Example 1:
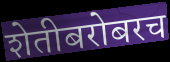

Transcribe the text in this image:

शेतीबरोबरच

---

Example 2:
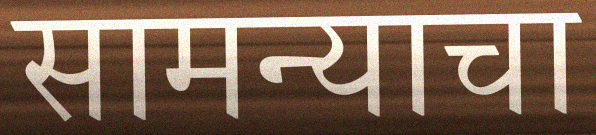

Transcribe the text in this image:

सामन्याचा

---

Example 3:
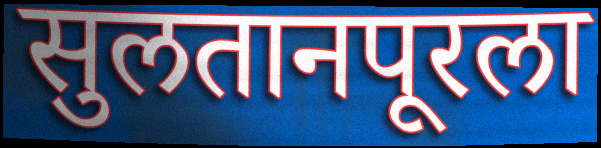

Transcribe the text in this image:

सुलतानपूरला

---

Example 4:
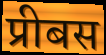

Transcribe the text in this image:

प्रीबस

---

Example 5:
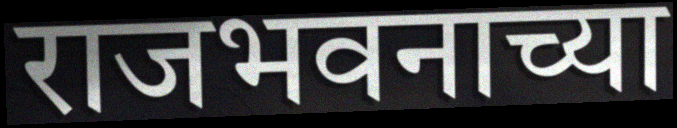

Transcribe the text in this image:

राजभवनाच्या